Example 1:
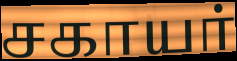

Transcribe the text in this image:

சகாயர்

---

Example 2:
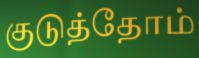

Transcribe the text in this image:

குடுத்தோம்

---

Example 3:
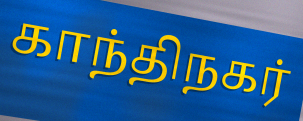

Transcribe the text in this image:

காந்திநகர்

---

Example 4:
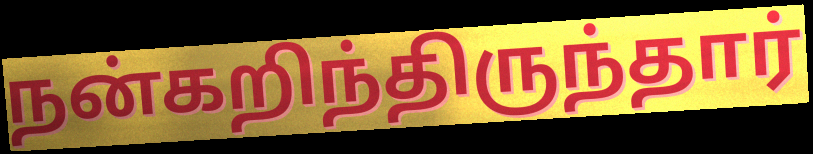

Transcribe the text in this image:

நன்கறிந்திருந்தார்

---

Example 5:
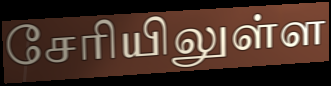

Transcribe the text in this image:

சேரியிலுள்ள